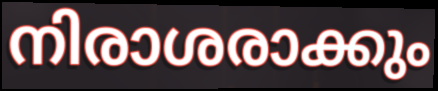
നിരാശരാക്കും